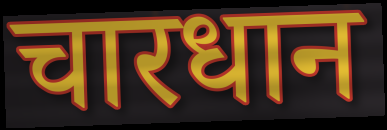
चारधान